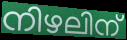
നിഴലിന്